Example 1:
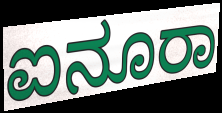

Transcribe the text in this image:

ಐನೂರಾ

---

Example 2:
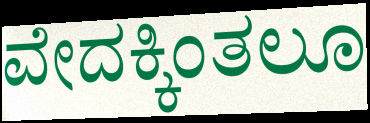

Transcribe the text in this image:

ವೇದಕ್ಕಿಂತಲೂ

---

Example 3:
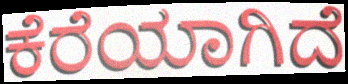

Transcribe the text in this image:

ಕೆರೆಯಾಗಿದೆ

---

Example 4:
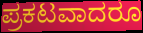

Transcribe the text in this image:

ಪ್ರಕಟವಾದರೂ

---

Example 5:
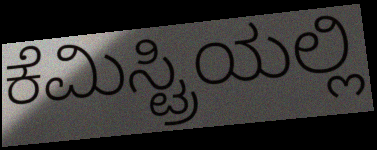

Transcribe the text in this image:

ಕೆಮಿಸ್ಟ್ರಿಯಲ್ಲಿ